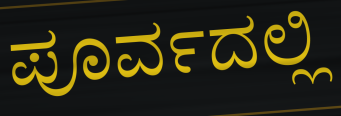
ಪೂರ್ವದಲ್ಲಿ